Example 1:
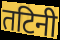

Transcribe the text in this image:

तटिनी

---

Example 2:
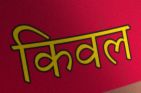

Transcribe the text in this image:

किवल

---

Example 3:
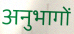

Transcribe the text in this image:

अनुभागों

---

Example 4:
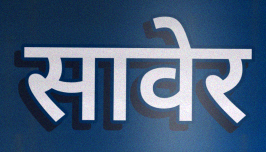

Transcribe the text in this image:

सावेर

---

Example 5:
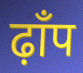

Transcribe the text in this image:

ढ़ाँप